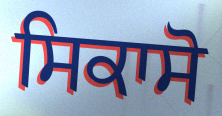
ਸਿਕਾਸੋ